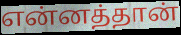
என்னத்தான்